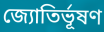
জ্যোতির্ভূষণ